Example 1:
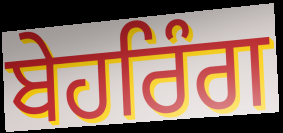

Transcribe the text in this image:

ਬੇਹਰਿੰਗ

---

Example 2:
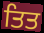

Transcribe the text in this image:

ਤਿਤ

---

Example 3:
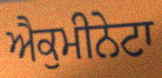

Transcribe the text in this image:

ਐਕੁਮੀਨੇਟਾ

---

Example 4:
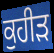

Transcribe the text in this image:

ਕੁਹੀੜ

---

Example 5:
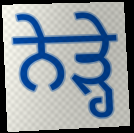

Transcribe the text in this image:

ਨੇੜ੍ਹੇ